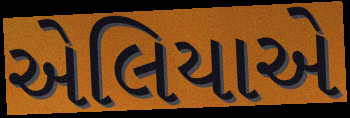
એલિયાએ